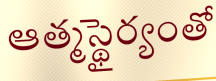
ఆత్మస్థైర్యంతో